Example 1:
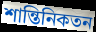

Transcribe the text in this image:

শান্তিনিকতন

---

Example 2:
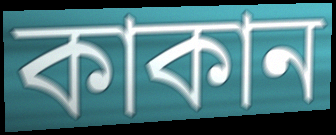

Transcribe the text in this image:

কাকান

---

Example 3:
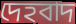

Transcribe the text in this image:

দেহবাদ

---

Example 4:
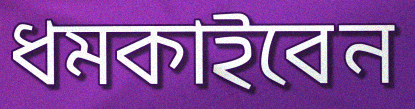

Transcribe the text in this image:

ধমকাইবেন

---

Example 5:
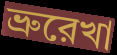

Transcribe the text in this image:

ভ্রুরেখা